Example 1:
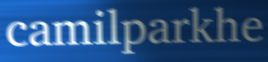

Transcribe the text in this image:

camilparkhe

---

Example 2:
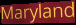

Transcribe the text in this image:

Maryland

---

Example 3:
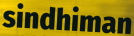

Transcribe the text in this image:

sindhiman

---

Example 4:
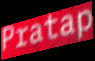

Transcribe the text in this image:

Pratap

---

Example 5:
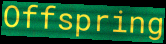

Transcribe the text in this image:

Offspring